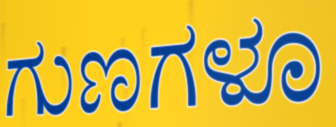
ಗುಣಗಳೂ